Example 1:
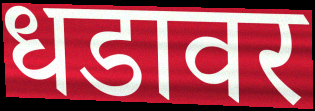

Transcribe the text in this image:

धडावर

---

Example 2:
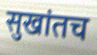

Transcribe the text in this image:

सुखांतच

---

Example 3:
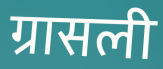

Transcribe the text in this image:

ग्रासली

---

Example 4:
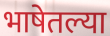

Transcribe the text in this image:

भाषेतल्या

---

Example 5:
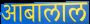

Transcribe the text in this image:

आबालाल